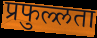
प्रफुल्लता